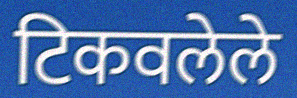
टिकवलेले